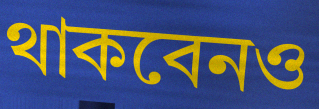
থাকবেনও